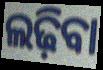
ଲଢ଼ିବା